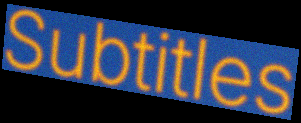
Subtitles